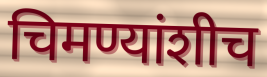
चिमण्यांशीच